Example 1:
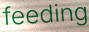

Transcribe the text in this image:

feeding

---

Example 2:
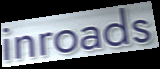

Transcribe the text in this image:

inroads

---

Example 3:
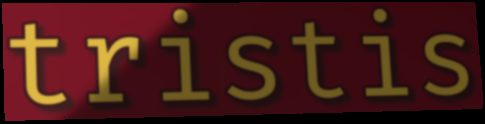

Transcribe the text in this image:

tristis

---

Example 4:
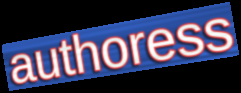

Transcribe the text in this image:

authoress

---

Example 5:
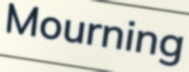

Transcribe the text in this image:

Mourning